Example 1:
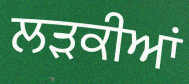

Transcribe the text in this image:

ਲੜਕੀਆਂ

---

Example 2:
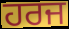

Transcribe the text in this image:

ਹਰਜ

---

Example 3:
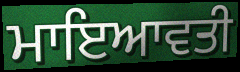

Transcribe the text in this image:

ਮਾਇਆਵਤੀ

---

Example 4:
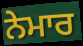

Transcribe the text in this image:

ਨੇਮਾਰ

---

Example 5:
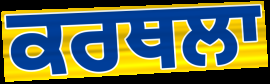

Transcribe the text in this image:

ਕਰਥਲਾ